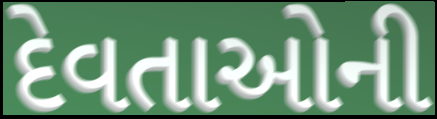
દેવતાઓની